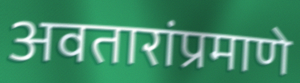
अवतारांप्रमाणे